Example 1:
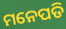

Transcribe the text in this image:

ମନେପଡି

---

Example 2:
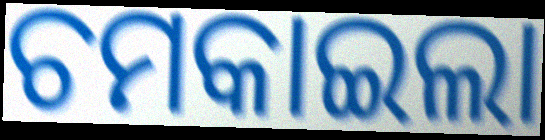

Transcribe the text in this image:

ଚମକାଇଲା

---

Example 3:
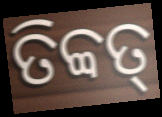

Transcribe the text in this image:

ତିବ୍ବତ୍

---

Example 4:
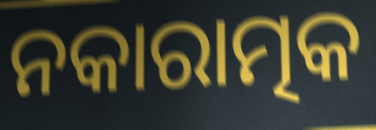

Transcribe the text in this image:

ନକାରାତ୍ମକ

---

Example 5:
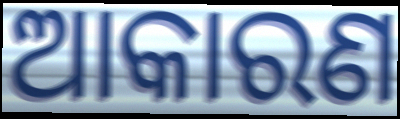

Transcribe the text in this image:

ଆକାରଣ